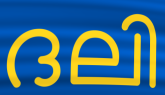
ദലി